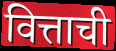
वित्ताची